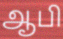
ஆபி